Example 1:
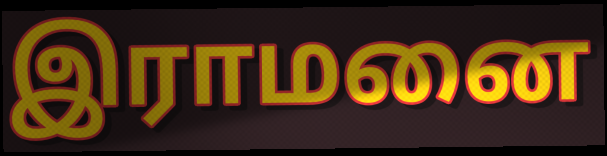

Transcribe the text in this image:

இராமனை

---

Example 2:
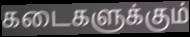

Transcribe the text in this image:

கடைகளுக்கும்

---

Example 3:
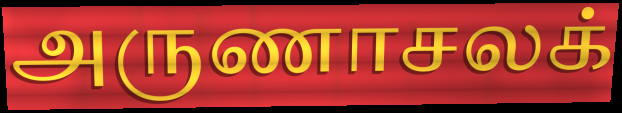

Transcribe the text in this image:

அருணாசலக்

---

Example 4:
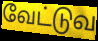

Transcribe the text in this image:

வேட்டுவ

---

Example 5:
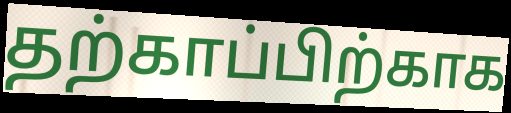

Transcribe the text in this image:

தற்காப்பிற்காக